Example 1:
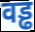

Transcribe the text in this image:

वड्ढ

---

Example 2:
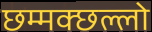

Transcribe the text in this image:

छम्मक्छल्लो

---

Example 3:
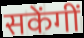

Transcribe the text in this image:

सकेंगीं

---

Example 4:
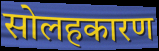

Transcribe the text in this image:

सोलहकारण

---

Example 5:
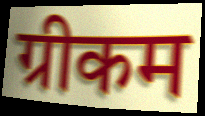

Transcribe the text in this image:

ग्रीकम